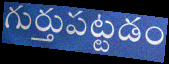
గుర్తుపట్టడం